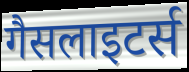
गैसलाइटर्स